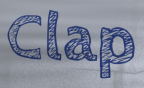
Clap